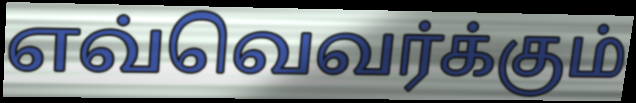
எவ்வெவர்க்கும்